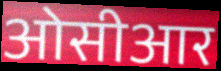
ओसीआर